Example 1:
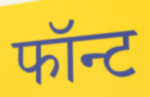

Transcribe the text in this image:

फॉन्ट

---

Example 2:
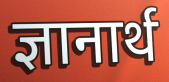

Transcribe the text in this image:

ज्ञानार्थ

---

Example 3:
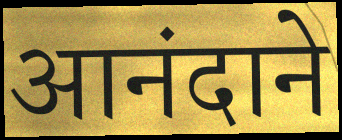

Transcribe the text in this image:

आनंदाने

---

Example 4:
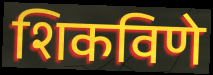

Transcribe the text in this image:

शिकविणे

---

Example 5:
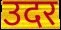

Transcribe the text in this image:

उदर